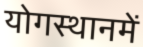
योगस्थानमें